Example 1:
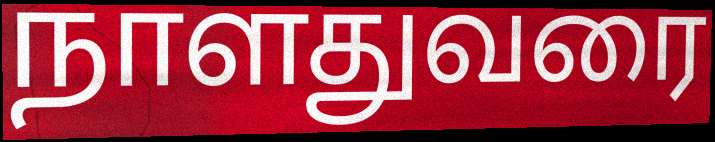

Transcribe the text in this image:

நாளதுவரை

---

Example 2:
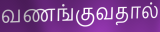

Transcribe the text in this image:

வணங்குவதால்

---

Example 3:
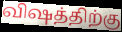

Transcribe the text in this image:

விஷத்திற்கு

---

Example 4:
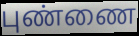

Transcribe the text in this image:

புண்ணை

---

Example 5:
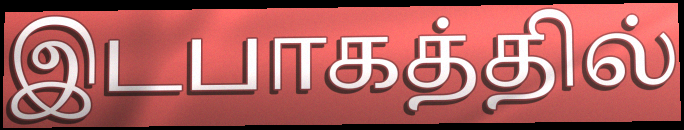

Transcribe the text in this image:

இடபாகத்தில்